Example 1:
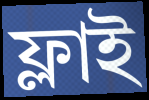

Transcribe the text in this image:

ফ্লাই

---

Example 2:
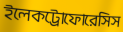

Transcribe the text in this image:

ইলেকট্রোফোরেসিস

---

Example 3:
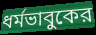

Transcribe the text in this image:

ধর্মভাবুকের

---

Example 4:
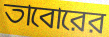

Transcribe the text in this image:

তাবোরের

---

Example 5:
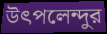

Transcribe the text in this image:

উৎপলেন্দুর